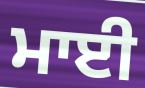
ਮਾਈ